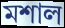
মশাল